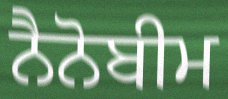
ਨੈਨੋਬੀਮ